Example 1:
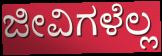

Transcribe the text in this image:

ಜೀವಿಗಳೆಲ್ಲ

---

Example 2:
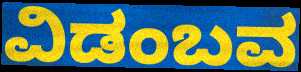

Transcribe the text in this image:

ವಿಡಂಬವ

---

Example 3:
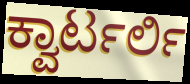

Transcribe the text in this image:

ಕ್ವಾರ್ಟರ್ಲಿ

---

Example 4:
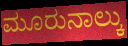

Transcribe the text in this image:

ಮೂರುನಾಲ್ಕು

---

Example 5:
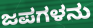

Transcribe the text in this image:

ಜಪಗಳನು